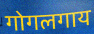
गोगलगाय